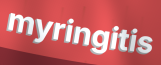
myringitis